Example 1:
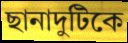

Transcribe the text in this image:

ছানাদুটিকে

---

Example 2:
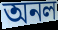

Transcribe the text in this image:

অনল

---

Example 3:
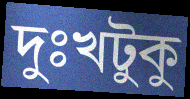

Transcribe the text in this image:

দুঃখটুকু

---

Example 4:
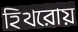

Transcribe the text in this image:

হিথরোয়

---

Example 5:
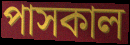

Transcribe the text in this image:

পাসকাল